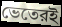
ভেতেরই